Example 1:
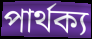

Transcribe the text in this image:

পাৰ্থক্য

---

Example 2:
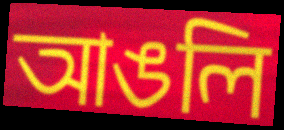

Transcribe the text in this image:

আঙলি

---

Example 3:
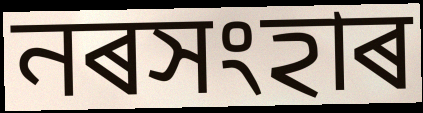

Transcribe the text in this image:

নৰসংহাৰ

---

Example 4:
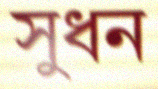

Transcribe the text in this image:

সুধন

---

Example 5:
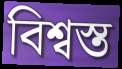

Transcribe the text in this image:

বিশ্বস্ত